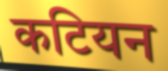
कटियन